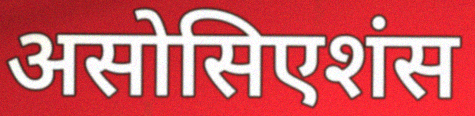
असोसिएशंस